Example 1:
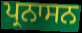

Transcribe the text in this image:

ਪ੍ਰਨਾਸਨ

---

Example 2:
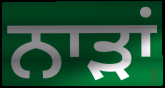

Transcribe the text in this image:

ਨਾੜਾਂ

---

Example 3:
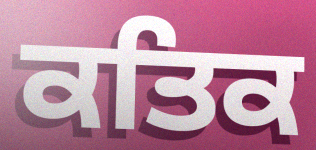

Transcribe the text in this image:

ਕਤਿਕ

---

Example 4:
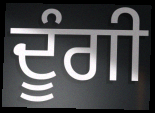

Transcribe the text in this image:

ਦੂੰਗੀ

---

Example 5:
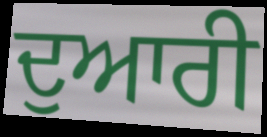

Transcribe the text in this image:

ਦੁਆਰੀ